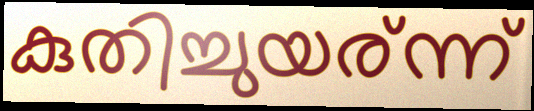
കുതിച്ചുയര്ന്ന്